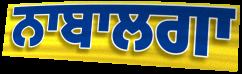
ਨਾਬਾਲਗਾ